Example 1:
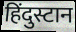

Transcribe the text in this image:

हिंदुस्टान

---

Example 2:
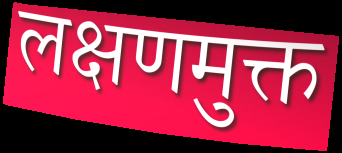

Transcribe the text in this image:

लक्षणमुक्त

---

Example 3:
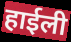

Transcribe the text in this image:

हाईली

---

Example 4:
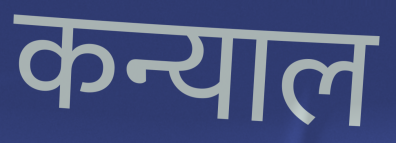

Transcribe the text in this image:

कन्याल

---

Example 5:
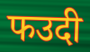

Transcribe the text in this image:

फउदी